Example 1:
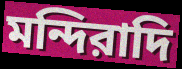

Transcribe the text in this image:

মন্দিরাদি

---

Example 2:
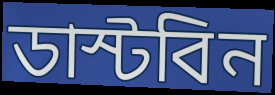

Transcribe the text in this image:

ডাস্টবিন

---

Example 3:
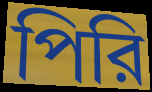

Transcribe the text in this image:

পিরি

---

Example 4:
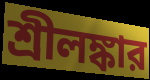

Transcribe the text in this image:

শ্রীলঙ্কার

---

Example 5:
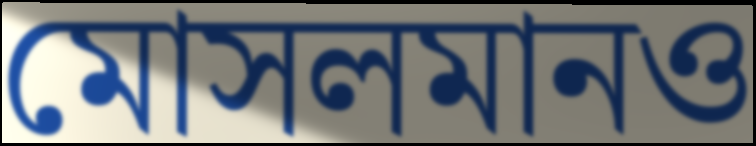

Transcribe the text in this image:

মোসলমানও